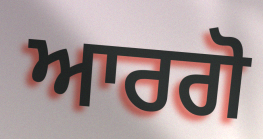
ਆਰਗੋ